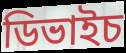
ডিভাইচ